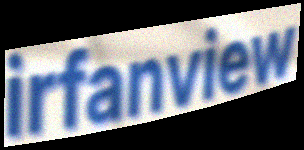
irfanview